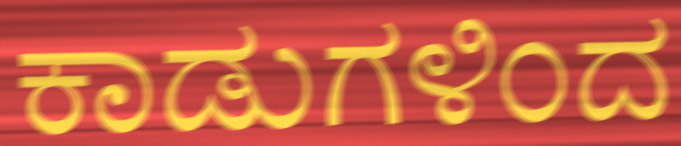
ಕಾಡುಗಳಿಂದ